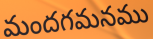
మందగమనము